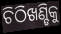
ଚିଠିଖଣ୍ଡିକୁ